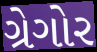
ગ્રેગોર